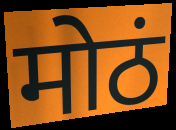
मोठं